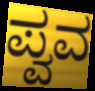
ಪ್ವವ